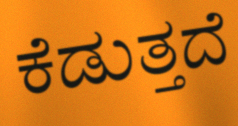
ಕೆಡುತ್ತದೆ